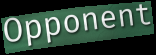
Opponent